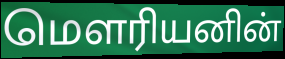
மௌரியனின்